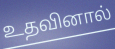
உதவினால்